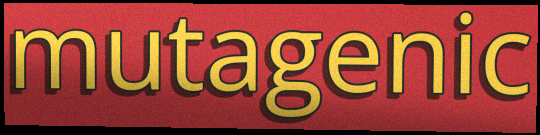
mutagenic